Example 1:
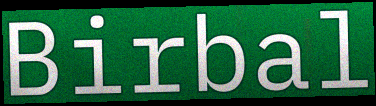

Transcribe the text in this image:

Birbal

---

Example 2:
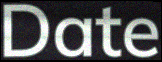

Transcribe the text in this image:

Date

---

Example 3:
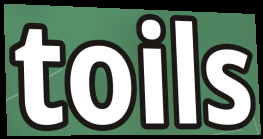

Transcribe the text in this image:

toils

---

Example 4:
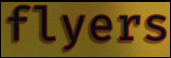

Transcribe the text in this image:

flyers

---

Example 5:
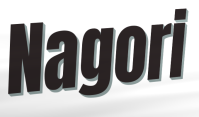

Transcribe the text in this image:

Nagori